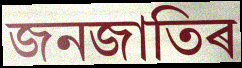
জনজাতিৰ